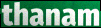
thanam